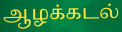
ஆழக்கடல்